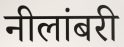
नीलांबरी